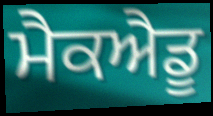
ਮੈਕਐਡੂ